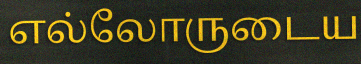
எல்லோருடைய